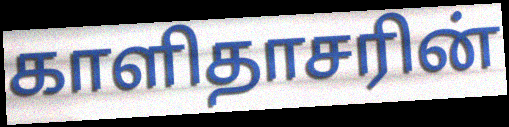
காளிதாசரின்